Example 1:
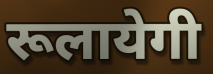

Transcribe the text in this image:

रूलायेगी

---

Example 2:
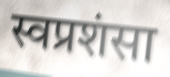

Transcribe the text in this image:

स्वप्रशंसा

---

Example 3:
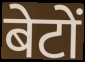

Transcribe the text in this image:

बेटों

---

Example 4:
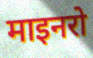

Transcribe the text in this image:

माइनरो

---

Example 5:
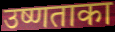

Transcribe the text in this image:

उष्णताका